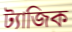
ট্যাজিক